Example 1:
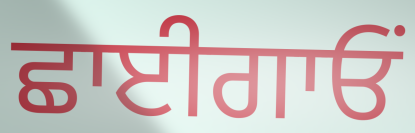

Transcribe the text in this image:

ਛਾਈਗਾਓਂ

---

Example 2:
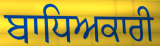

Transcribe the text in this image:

ਬਾਧਿਅਕਾਰੀ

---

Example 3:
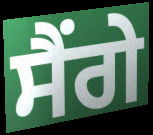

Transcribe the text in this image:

ਸੈਂਗੇ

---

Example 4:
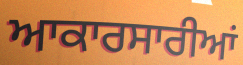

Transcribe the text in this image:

ਆਕਾਰਸਾਰੀਆਂ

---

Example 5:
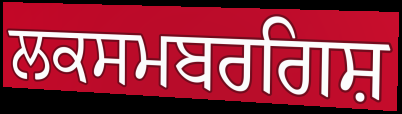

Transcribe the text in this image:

ਲਕਸਮਬਰਗਿਸ਼